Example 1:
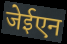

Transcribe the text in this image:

जेईएन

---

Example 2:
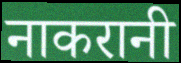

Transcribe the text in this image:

नाकरानी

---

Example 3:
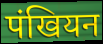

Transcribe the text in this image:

पंखियन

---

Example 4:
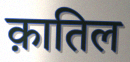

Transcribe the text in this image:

क़ातिल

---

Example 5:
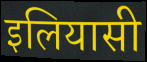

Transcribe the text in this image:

इलियासी